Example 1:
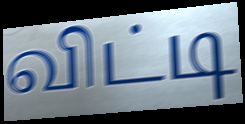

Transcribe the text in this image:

விட்டி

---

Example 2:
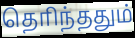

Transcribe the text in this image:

தெரிந்ததும்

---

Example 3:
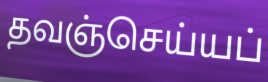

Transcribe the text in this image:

தவஞ்செய்யப்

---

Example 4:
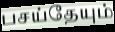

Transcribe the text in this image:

பசய்தேயும்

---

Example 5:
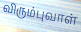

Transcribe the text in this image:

விரும்புவாள்